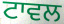
ਟਾਵਲ